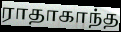
ராதாகாந்த